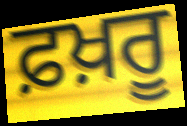
ਫ਼ਖ਼ਰੂ